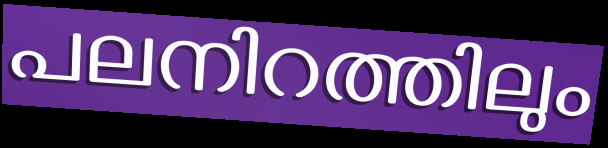
പലനിറത്തിലും